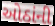
ઓઠાંની